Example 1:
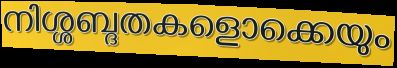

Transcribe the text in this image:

നിശ്ശബ്ദതകളൊക്കെയും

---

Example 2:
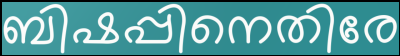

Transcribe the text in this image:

ബിഷപ്പിനെതിരേ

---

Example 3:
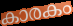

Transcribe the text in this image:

കാരകം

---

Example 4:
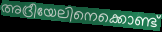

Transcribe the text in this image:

അദ്രീയേലിനെക്കൊണ്ട്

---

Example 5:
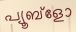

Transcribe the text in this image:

പ്യൂബ്ളോ